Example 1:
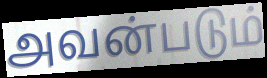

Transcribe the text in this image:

அவன்படும்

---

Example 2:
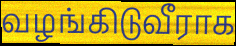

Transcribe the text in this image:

வழங்கிடுவீராக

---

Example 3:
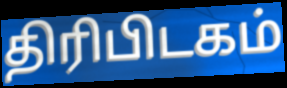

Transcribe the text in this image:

திரிபிடகம்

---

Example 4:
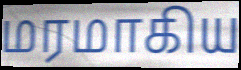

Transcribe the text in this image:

மரமாகிய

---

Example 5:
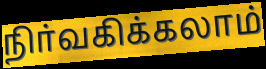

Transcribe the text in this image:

நிர்வகிக்கலாம்